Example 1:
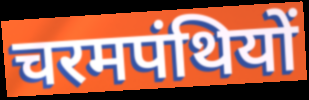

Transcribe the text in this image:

चरमपंथियों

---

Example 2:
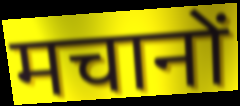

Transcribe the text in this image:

मचानों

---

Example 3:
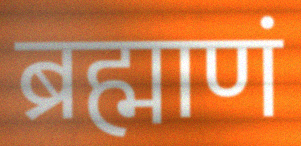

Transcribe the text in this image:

ब्रह्माणं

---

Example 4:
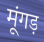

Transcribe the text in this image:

मूंगड़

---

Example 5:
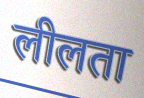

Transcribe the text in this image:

लीलता